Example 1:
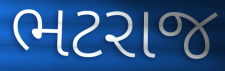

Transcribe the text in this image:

ભટરાજ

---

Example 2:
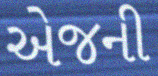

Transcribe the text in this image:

એજની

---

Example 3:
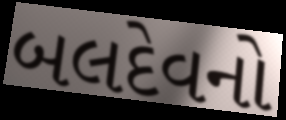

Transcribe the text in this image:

બલદેવનો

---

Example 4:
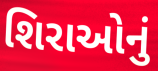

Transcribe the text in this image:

શિરાઓનું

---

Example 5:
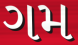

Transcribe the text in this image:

ગમ